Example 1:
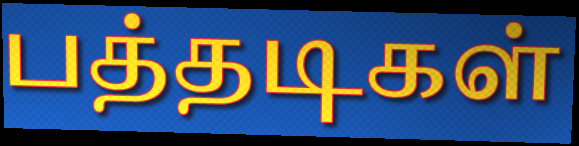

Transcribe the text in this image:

பத்தடிகள்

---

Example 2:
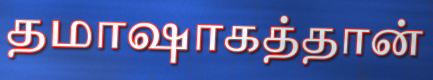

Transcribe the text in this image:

தமாஷாகத்தான்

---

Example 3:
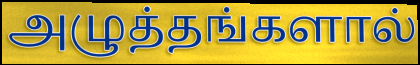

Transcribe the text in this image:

அழுத்தங்களால்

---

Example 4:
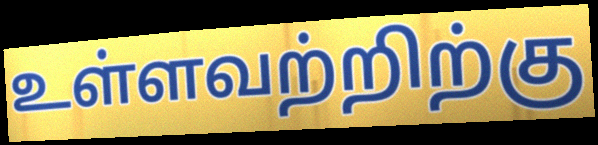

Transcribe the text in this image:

உள்ளவற்றிற்கு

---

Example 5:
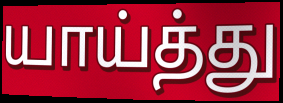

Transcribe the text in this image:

யாய்த்து